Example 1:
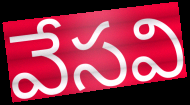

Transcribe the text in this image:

వేసవి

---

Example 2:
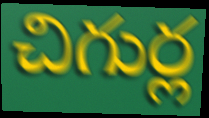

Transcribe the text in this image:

చిగుర్ల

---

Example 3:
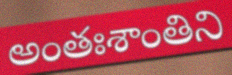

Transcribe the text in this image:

అంతఃశాంతిని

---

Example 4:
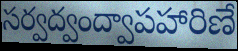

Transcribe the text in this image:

సర్వద్వంద్వాపహారిణే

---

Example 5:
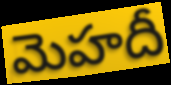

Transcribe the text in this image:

మెహదీ